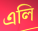
এলি